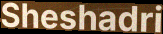
Sheshadri